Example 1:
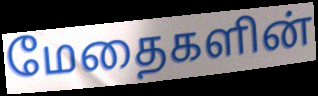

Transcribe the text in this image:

மேதைகளின்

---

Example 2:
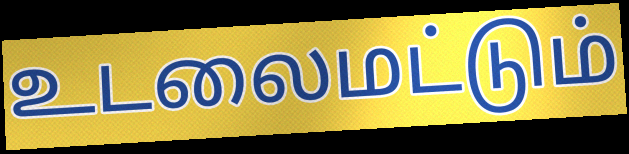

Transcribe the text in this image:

உடலைமட்டும்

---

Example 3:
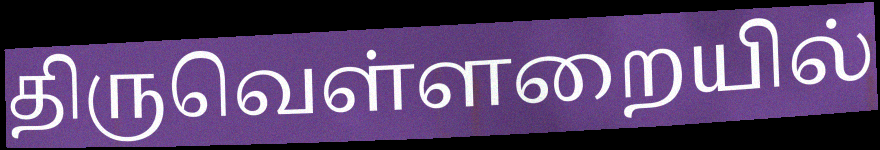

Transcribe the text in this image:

திருவெள்ளறையில்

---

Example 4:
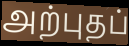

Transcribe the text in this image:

அற்புதப்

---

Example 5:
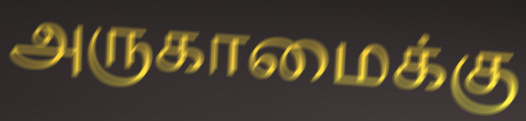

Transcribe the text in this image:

அருகாமைக்கு